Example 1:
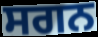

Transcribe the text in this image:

ਸਗਨ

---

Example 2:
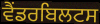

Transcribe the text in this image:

ਵੈਂਡਰਬਿਲਟਸ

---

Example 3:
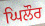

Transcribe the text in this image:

ਘਿਲੌਰ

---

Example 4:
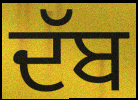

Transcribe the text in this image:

ਦੱਬ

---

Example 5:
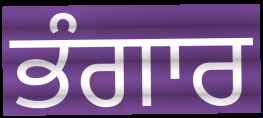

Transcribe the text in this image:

ਭੰਗਾਰ